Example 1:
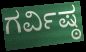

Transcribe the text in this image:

ಗರ್ವಿಷ್ಠ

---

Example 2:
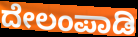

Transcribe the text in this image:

ದೇಲಂಪಾಡಿ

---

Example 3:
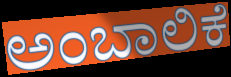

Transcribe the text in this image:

ಅಂಬಾಲಿಕೆ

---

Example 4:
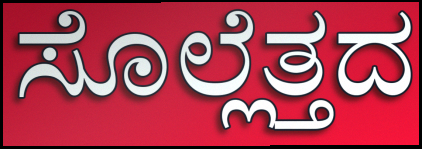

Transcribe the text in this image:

ಸೊಲ್ಲೆತ್ತದ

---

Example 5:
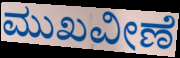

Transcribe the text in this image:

ಮುಖವೀಣೆ